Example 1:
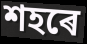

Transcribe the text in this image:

শহৰে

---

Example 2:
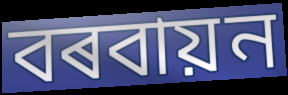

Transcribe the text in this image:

বৰবায়ন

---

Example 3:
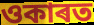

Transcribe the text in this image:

ওকাৰত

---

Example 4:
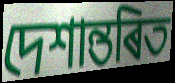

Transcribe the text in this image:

দেশান্তৰিত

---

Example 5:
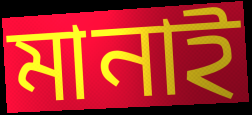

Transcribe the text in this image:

মানাই